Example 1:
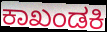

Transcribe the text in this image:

ಕಾಖಂಡಕಿ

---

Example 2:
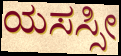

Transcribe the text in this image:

ಯಸಸ್ಸೀ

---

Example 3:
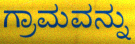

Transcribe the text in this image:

ಗ್ರಾಮವನ್ನು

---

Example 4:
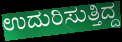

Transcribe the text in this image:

ಉದುರಿಸುತ್ತಿದ್ದ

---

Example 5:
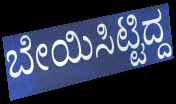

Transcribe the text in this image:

ಬೇಯಿಸಿಟ್ಟಿದ್ದ